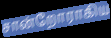
சான்றோராகிய